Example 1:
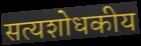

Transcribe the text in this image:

सत्यशोधकीय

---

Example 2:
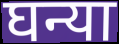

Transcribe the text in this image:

घन्या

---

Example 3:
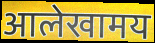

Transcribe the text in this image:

आलेखामय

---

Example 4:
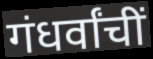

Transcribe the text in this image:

गंधर्वांचीं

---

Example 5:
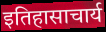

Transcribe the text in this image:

इतिहासाचार्य